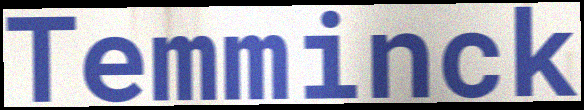
Temminck